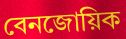
বেনজোয়িক